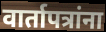
वार्तापत्रांना